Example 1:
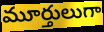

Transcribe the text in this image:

మూర్తులుగా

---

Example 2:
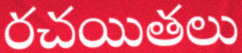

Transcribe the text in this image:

రచయితలు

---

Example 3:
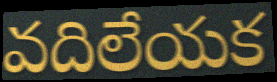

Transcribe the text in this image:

వదిలేయక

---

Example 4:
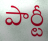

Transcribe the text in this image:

పార్టీ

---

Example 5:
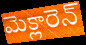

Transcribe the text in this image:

మెక్లారెన్